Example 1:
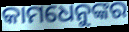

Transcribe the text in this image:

କାମଧେନୁଙ୍କର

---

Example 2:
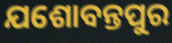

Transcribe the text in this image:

ଯଶୋବନ୍ତପୁର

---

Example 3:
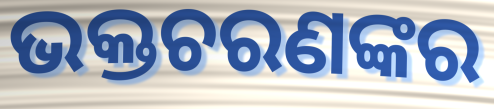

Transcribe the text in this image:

ଭକ୍ତଚରଣଙ୍କର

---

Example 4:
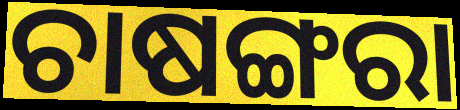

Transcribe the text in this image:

ଚାଷଙ୍ଗରା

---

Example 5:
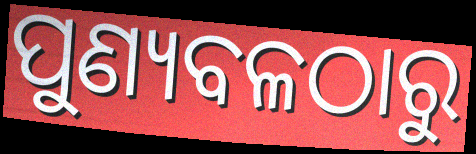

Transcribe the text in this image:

ପୁଣ୍ୟବଳଠାରୁ